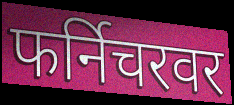
फर्निचरवर